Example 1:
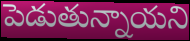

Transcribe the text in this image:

పెడుతున్నాయని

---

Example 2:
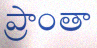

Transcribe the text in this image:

ప్రాంతా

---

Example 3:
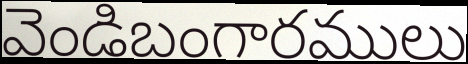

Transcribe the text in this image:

వెండిబంగారములు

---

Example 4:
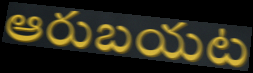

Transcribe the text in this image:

ఆరుబయట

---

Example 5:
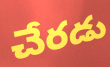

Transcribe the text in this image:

చేరడు